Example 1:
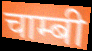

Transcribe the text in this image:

चाम्बी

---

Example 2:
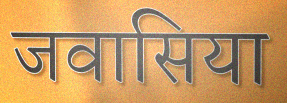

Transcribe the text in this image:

जवासिया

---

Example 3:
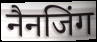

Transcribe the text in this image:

नैनजिंग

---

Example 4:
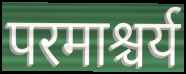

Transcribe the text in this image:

परमाश्चर्य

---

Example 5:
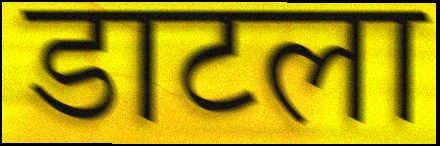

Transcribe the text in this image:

डाटला